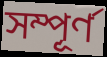
সম্পূৰ্ণ